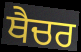
ਥੈਚਰ